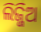
ଲିଜ୍ଜିଅ